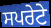
ਸਪਰੇਟੇ